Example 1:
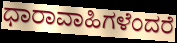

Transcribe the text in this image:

ಧಾರಾವಾಹಿಗಳೆಂದರೆ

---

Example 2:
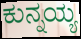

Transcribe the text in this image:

ಕುನ್ನಯ್ಯ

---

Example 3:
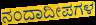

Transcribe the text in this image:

ನಂದಾದೀಪಗಳ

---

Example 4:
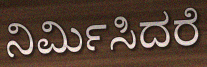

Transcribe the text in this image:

ನಿರ್ಮಿಸಿದರೆ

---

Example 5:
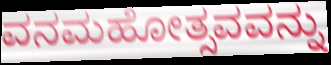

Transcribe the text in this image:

ವನಮಹೋತ್ಸವವನ್ನು